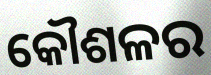
କୌଶଳର